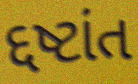
દ્દષ્ટાંત